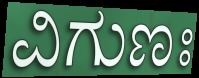
ವಿಗುಣಃ